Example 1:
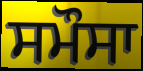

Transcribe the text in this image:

ਸਮੌਸਾ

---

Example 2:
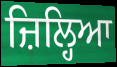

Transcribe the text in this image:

ਜ਼ਿਲ੍ਹਿਆ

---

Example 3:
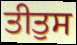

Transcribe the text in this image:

ਤੀਤੁਸ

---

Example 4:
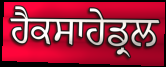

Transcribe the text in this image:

ਹੈਕਸਾਹੇਡ੍ਰਲ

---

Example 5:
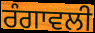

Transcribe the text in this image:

ਰੰਗਾਵਲੀ